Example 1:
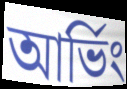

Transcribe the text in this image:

আর্ভিং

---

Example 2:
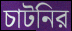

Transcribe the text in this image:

চাটনির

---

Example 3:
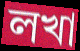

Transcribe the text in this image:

লখা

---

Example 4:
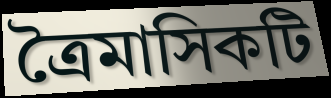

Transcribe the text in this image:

ত্রৈমাসিকটি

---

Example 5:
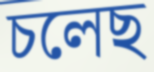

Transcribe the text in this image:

চলেছ